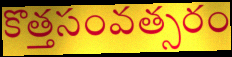
కొత్తసంవత్సరం